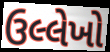
ઉલ્લેખો